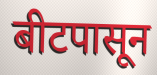
बीटपासून